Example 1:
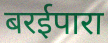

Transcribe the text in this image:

बरईपारा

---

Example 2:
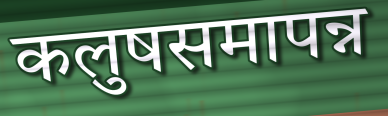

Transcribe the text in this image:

कलुषसमापन्न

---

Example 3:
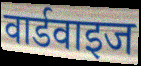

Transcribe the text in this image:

वार्डवाइज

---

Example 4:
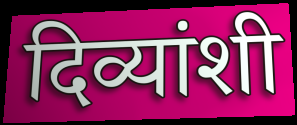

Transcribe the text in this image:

दिव्यांशी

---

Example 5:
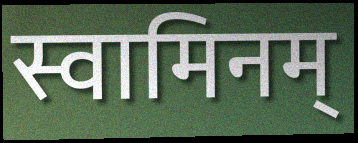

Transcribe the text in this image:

स्वामिनम्